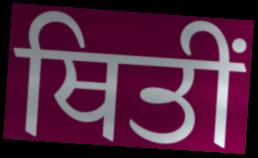
ਥਿਤੀਂ